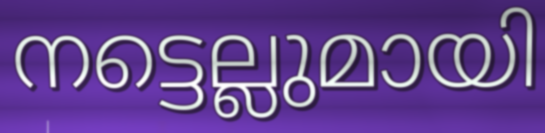
നട്ടെല്ലുമായി